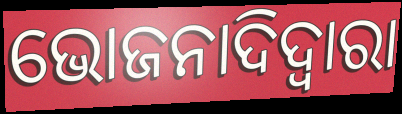
ଭୋଜନାଦିଦ୍ୱାରା